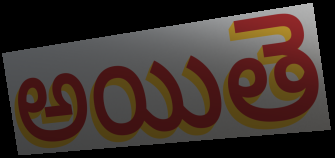
అయితె